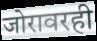
जोरावरही